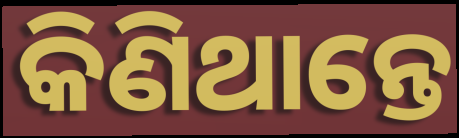
କିଣିଥାନ୍ତେ